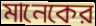
মানেকের